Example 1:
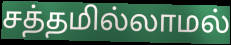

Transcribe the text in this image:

சத்தமில்லாமல்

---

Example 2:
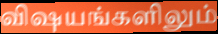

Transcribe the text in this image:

விஷயங்களிலும்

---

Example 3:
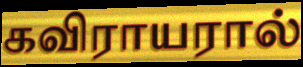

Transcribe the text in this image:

கவிராயரால்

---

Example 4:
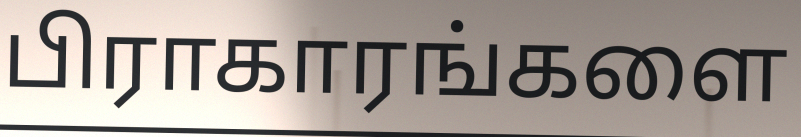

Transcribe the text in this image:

பிராகாரங்களை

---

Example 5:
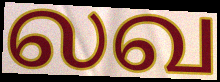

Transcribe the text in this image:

லவ